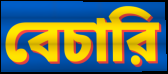
বেচারি